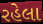
રહેલા